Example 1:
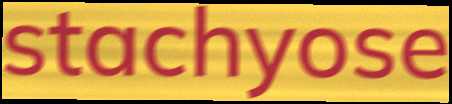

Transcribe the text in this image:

stachyose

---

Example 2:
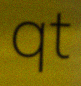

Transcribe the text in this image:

qt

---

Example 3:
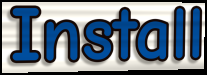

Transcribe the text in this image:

Install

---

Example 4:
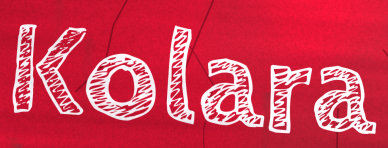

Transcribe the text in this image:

Kolara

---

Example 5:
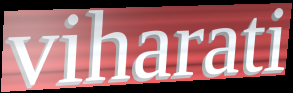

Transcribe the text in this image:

viharati